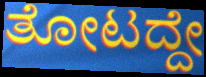
ತೋಟದ್ದೇ